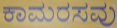
ಕಾಮರಸವು